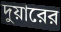
দুয়ারের